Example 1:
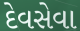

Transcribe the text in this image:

દેવસેવા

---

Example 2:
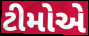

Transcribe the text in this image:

ટીમોએ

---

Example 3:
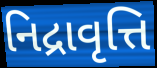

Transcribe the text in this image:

નિદ્રાવૃત્તિ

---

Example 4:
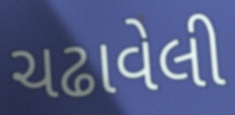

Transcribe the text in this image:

ચઢાવેલી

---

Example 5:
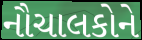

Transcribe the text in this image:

નૌચાલકોને